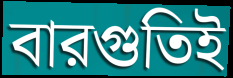
বারগুতিই